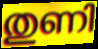
തുണി